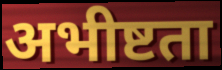
अभीष्टता